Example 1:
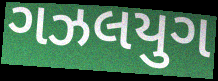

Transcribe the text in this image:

ગઝલયુગ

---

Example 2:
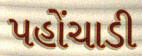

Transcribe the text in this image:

પહોંચાડી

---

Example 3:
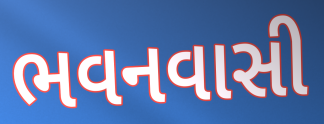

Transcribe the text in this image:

ભવનવાસી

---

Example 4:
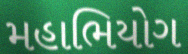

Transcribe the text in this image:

મહાભિયોગ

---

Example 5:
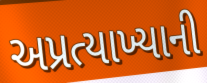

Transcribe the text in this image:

અપ્રત્યાખ્યાની